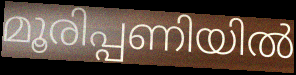
മൂരിപ്പണിയിൽ